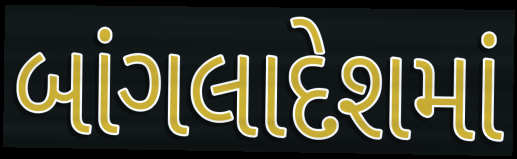
બાંગલાદેશમાં